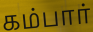
கம்பார்